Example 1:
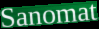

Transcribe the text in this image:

Sanomat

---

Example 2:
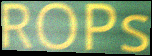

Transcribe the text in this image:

ROPs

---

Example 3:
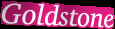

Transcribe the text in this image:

Goldstone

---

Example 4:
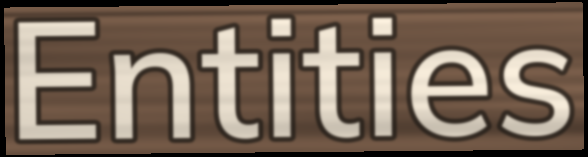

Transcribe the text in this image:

Entities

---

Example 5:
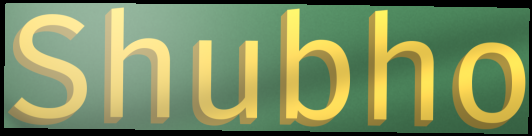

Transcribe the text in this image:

Shubho